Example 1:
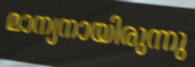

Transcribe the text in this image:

മാന്യനായിരുന്നു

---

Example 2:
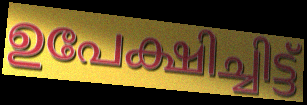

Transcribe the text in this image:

ഉപേക്ഷിച്ചിട്ട്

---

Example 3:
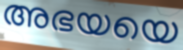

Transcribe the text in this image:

അഭയയെ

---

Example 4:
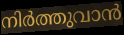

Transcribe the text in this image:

നിർത്തുവാൻ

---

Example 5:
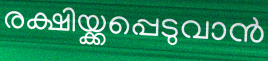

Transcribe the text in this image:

രക്ഷിയ്ക്കപ്പെടുവാൻ